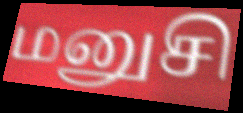
மனுசி